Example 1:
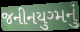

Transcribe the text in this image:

જનીનયુગ્મનું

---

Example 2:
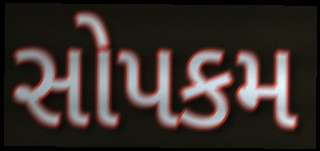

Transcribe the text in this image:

સોપકમ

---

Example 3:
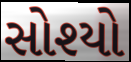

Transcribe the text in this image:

સોશ્યો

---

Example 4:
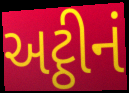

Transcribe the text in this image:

અટ્ઠીનં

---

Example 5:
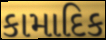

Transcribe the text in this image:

કામાદિક